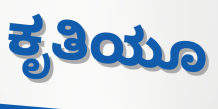
ಕೃತಿಯೂ